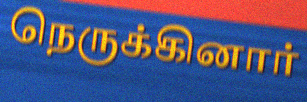
நெருக்கினார்